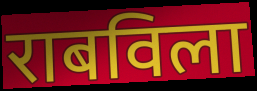
राबविला